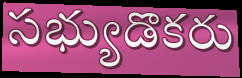
సభ్యుడొకరు